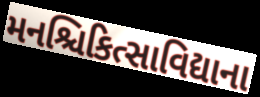
મનશ્ચિકિત્સાવિદ્યાના